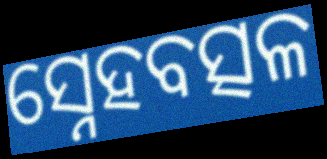
ସ୍ନେହବତ୍ସଳ